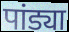
पांड्या